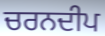
ਚਰਨਦੀਪ